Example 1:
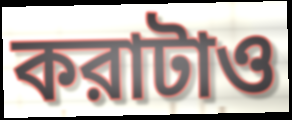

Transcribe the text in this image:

করাটাও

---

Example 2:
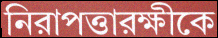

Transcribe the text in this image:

নিরাপত্তারক্ষীকে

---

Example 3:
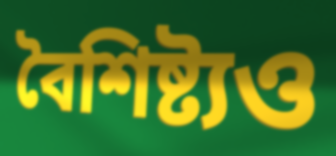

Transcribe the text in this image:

বৈশিষ্ট্যও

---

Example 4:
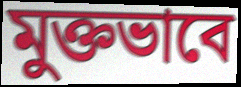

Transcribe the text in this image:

মুক্তভাবে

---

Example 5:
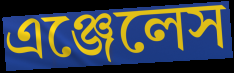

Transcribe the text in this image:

এঞ্জেলেস